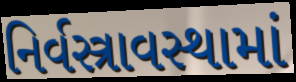
નિર્વસ્ત્રાવસ્થામાં